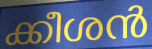
ക്കീശൻ